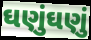
ઘણુંઘણું